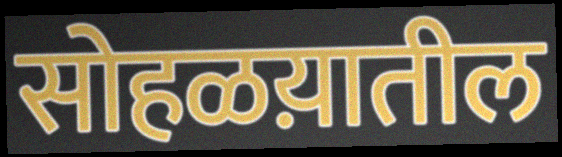
सोहळय़ातील